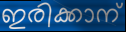
ഇരിക്കാന്